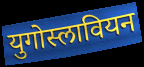
युगोस्लावियन